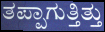
ತಪ್ಪಾಗುತ್ತಿತ್ತು